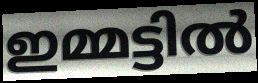
ഇമ്മട്ടിൽ